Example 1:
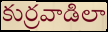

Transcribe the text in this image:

కుర్రవాడిలా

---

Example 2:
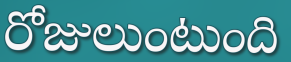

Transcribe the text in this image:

రోజులుంటుంది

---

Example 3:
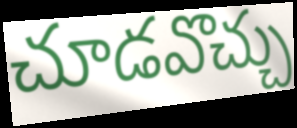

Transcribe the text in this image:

చూడవొచ్చు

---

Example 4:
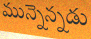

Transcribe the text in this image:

మున్నెన్నడు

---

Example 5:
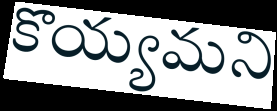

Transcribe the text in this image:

కొయ్యమని